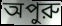
অপুরু